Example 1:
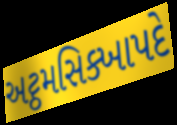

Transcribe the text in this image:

અટ્ઠમસિક્ખાપદે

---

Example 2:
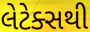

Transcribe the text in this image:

લેટેક્સથી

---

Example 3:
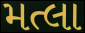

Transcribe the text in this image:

મત્લા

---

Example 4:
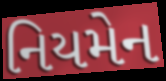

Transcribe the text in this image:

નિયમેન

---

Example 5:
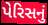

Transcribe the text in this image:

પેરિસનું